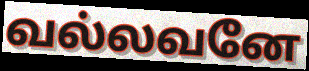
வல்லவனே